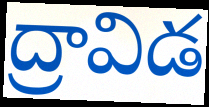
ద్రావిడ